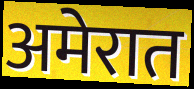
अमेरात